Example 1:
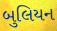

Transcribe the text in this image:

બુલિયન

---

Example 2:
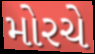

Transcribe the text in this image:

મોરચે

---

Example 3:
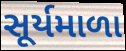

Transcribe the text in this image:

સૂર્યમાળા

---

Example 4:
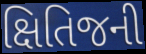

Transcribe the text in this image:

ક્ષિતિજની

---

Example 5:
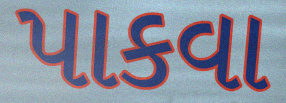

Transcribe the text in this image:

પાકવા